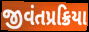
જીવંતપ્રક્રિયા